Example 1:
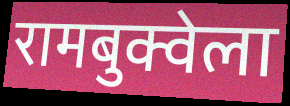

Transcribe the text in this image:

रामबुक्वेला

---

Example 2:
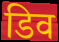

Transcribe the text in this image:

डिव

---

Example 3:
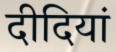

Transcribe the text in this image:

दीदियां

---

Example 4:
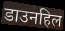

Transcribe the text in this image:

डाउनहिल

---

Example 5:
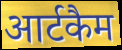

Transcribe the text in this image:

आर्टकैम